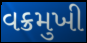
વક્રમુખી